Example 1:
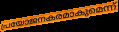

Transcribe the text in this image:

പ്രയോജനകരമാകുമെന്ന്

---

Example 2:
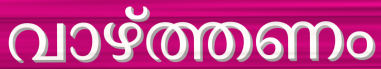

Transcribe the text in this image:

വാഴ്ത്തണം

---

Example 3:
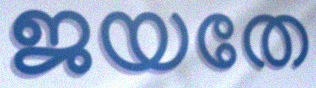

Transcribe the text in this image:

ജയതേ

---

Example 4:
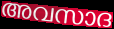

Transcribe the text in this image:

അവസാദ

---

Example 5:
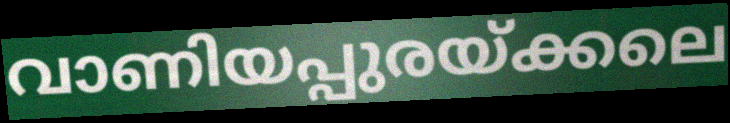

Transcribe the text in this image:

വാണിയപ്പുരയ്ക്കലെ